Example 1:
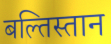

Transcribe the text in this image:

बल्तिस्तान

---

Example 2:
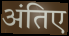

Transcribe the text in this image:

अंतिए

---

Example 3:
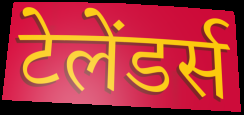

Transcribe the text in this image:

टेलेंडर्स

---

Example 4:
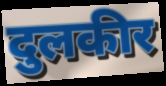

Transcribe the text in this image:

दुलकीर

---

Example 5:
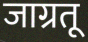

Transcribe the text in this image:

जाग्रतू